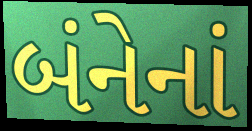
બંનેનાં